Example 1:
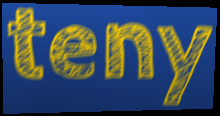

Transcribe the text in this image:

teny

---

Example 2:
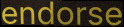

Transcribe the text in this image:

endorse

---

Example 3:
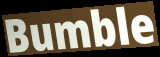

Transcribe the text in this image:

Bumble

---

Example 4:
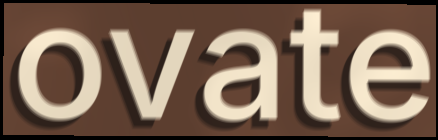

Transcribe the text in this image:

ovate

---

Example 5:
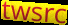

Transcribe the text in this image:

twsrc